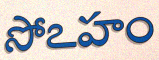
సోఽహం